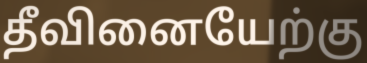
தீவினையேற்கு